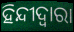
ହିନ୍ଦୀଦ୍ଵାରା